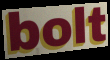
bolt